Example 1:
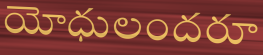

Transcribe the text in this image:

యోధులందరూ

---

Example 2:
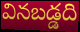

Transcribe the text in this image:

వినబడ్డది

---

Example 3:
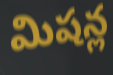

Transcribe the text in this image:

మిషన్ల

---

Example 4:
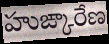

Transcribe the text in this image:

హుఙ్కారేణ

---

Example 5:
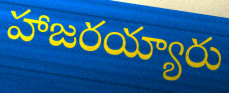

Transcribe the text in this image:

హాజరయ్యారు